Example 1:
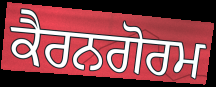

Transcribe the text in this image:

ਕੈਰਨਗੋਰਮ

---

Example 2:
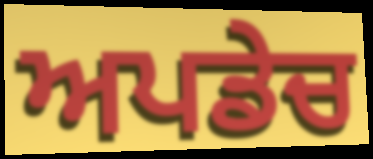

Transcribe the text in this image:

ਅਪਡੇਚ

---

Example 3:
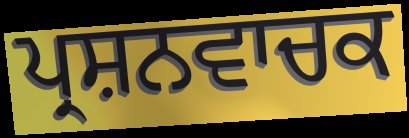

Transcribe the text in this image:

ਪ੍ਰਸ਼ਨਵਾਚਕ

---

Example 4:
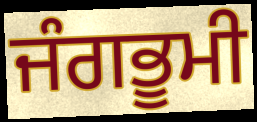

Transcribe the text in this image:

ਜੰਗਭੂਮੀ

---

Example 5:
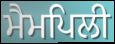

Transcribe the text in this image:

ਮੈਮਪਿਲੀ